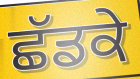
ਛੱਡਕੇ